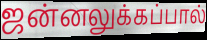
ஜன்னலுக்கப்பால்